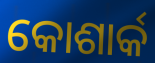
କୋଶାର୍କ